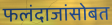
फलंदाजांसोबत